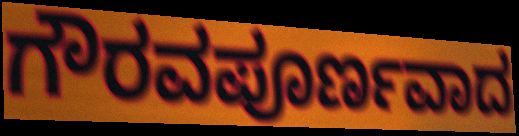
ಗೌರವಪೂರ್ಣವಾದ